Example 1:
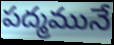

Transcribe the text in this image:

పద్మమునే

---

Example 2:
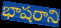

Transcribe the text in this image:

భాషరాని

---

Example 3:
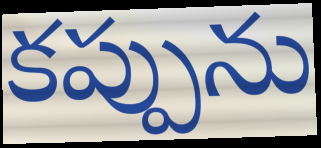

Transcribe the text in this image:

కప్పును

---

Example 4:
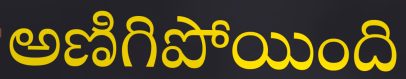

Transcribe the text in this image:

అణిగిపోయింది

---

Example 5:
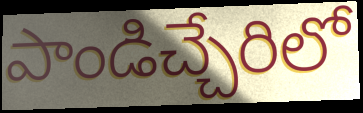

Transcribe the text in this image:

పాండిచ్చేరిలో